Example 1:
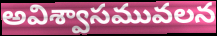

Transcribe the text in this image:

అవిశ్వాసమువలన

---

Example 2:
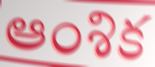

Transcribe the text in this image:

ఆంశిక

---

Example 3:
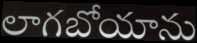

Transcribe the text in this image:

లాగబోయాను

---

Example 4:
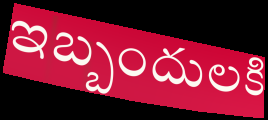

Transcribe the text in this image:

ఇబ్బందులకి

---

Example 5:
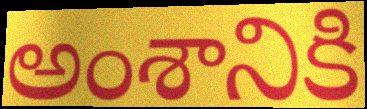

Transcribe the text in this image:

అంశానికి